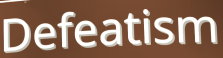
Defeatism